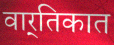
वार्तिकात